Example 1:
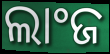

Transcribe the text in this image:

ଲାଂଜ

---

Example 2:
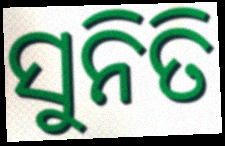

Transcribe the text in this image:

ସୁନିତି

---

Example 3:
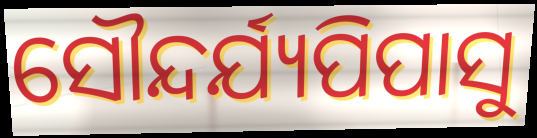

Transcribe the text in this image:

ସୌନ୍ଦର୍ଯ୍ୟପିପାସୁ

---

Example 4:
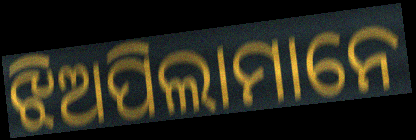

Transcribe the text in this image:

ଝିଅପିଲାମାନେ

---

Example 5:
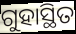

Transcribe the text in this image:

ଗୁହାସ୍ଥିତ